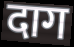
दाग